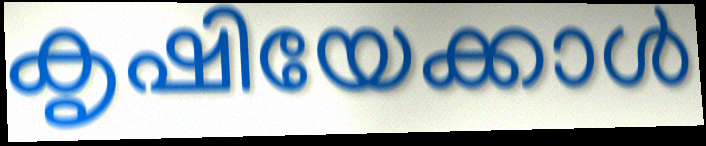
കൃഷിയേക്കാൾ